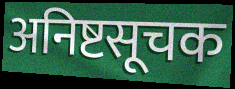
अनिष्टसूचक